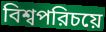
বিশ্বপরিচয়ে